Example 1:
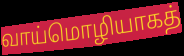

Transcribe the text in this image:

வாய்மொழியாகத்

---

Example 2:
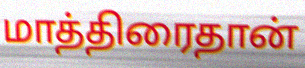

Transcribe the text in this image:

மாத்திரைதான்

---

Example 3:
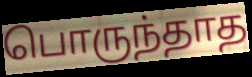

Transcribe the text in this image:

பொருந்தாத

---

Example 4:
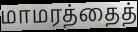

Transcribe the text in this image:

மாமரத்தைத்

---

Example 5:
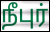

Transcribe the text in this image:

நீபுர்